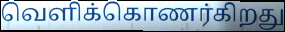
வெளிக்கொணர்கிறது